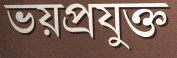
ভয়প্রযুক্ত